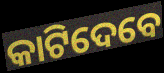
କାଟିଦେବେ